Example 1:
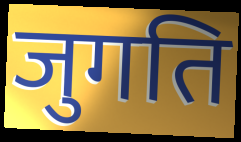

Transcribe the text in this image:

जुगति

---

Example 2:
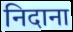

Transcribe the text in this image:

निदाना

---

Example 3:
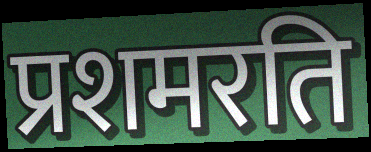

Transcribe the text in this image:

प्रशमरति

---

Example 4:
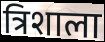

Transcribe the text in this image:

त्रिशाला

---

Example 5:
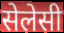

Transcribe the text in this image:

सेलेसी